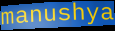
manushya